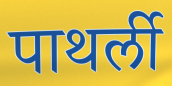
पाथर्ली